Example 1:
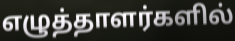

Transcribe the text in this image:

எழுத்தாளர்களில்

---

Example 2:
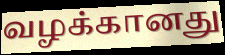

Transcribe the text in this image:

வழக்கானது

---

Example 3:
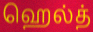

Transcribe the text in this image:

ஹெல்த்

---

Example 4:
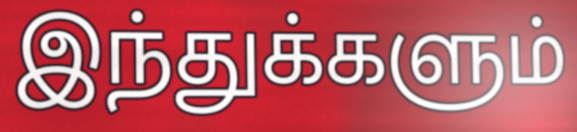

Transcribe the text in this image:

இந்துக்களும்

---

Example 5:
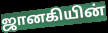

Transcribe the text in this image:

ஜானகியின்